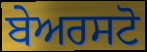
ਬੇਅਰਸਟੋ